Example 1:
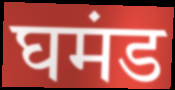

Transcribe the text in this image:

घमंड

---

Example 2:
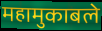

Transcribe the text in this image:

महामुकाबले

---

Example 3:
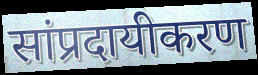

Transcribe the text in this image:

सांप्रदायीकरण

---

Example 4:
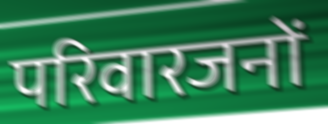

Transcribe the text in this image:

परिवारजनों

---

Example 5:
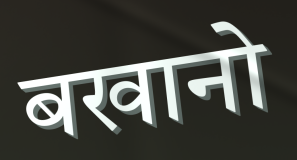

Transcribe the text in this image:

बखानो